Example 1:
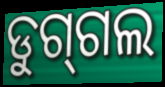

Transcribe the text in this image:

ଡୁଗ୍‌ଗଲ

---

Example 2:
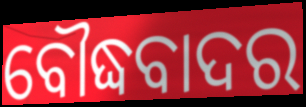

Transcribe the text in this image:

ବୌଦ୍ଧବାଦର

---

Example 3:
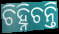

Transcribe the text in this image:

ଚିହ୍ନିଚନ୍ତି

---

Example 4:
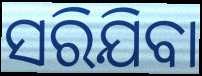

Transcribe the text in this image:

ସରିଯିବା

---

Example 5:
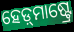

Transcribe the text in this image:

ହେଡ଼୍‍ମାଷ୍ଟ୍ରେ